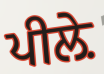
ਪੀਲ਼ੇ